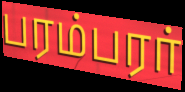
பரம்பரர்